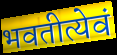
भवतीत्येवं